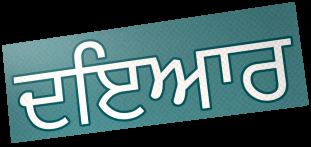
ਦਇਆਰ